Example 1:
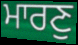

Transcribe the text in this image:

ਮਾਰਣੁ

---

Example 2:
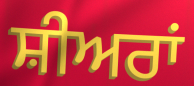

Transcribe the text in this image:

ਸ਼ੀਅਰਾਂ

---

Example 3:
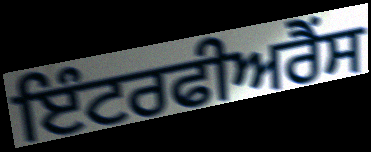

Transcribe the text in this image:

ਇੰਟਰਫੀਅਰੈਂਸ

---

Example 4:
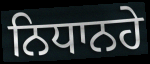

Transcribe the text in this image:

ਨਿਧਾਨਹੇ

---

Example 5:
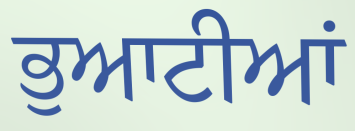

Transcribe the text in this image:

ਭੁਆਟੀਆਂ